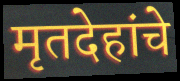
मृतदेहांचे